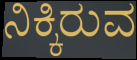
ನಿಕ್ಕಿರುವ